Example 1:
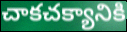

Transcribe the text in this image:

చాకచక్యానికి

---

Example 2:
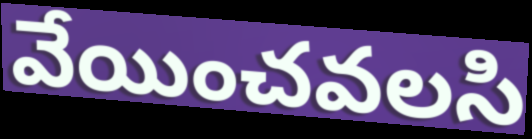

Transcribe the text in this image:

వేయించవలసి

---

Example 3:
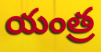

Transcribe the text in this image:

యంత్ర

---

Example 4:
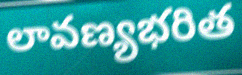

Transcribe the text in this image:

లావణ్యభరిత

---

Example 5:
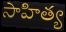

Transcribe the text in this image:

సాహిత్య